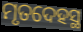
ମୃତଦେହସ୍ଥ